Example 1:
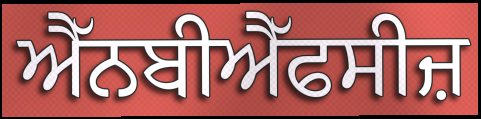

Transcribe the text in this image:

ਐੱਨਬੀਐੱਫਸੀਜ਼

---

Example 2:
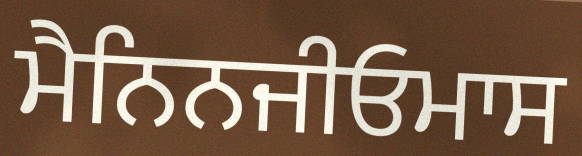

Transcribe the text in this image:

ਮੈਨਿਨਜੀਓਮਾਸ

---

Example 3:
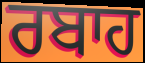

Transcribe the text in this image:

ਰਬਾਹ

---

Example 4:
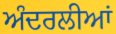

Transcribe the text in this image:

ਅੰਦਰਲੀਆਂ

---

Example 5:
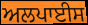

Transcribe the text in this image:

ਅਲਪਾਈਸ